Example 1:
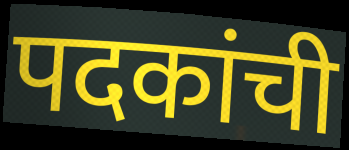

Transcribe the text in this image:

पदकांची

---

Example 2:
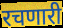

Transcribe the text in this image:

रचणारी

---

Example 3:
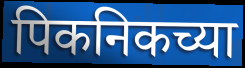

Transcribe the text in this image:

पिकनिकच्या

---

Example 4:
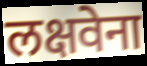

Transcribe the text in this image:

लक्षवेना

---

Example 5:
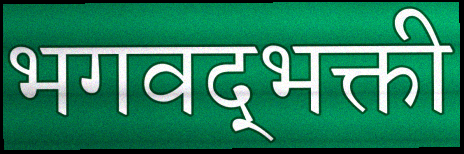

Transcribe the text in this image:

भगवद्‌भक्ती